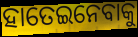
ହାତେଇନେବାକୁ